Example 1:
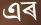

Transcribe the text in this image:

এৰ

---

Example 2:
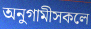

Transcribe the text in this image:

অনুগামীসকলে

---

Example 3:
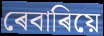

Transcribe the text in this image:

ৰেবাৰিয়ে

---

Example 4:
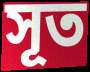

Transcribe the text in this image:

সূত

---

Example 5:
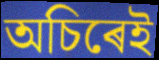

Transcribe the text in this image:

অচিৰেই